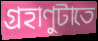
গ্রহাণুটাতে